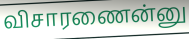
விசாரணைன்னு